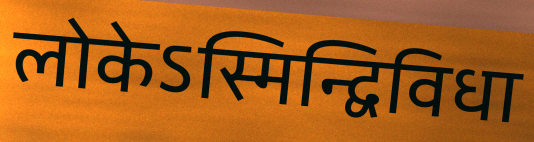
लोकेऽस्मिन्द्विविधा